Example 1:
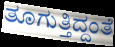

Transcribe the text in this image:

ತೂಗುತ್ತಿದ್ದಂತೆ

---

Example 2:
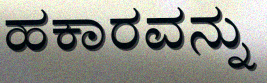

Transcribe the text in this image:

ಹಕಾರವನ್ನು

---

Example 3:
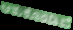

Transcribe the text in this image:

ಆತುಕೊಂಡಿವೆ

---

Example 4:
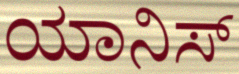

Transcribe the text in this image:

ಯಾನಿಸ್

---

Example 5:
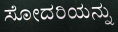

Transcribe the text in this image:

ಸೋದರಿಯನ್ನು